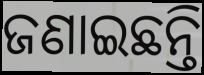
ଜଣାଇଛନ୍ତି